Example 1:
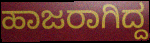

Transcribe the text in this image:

ಹಾಜರಾಗಿದ್ದ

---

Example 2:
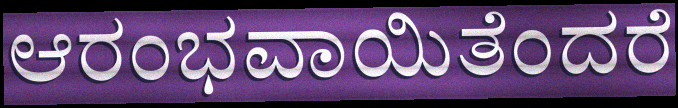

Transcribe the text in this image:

ಆರಂಭವಾಯಿತೆಂದರೆ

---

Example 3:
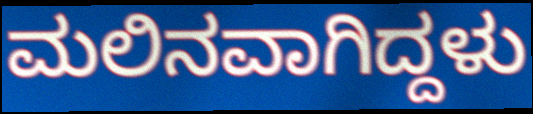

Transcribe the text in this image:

ಮಲಿನವಾಗಿದ್ದಳು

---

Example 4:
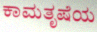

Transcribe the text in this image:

ಕಾಮತೃಷೆಯ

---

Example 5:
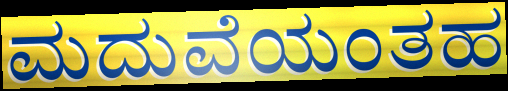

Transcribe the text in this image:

ಮದುವೆಯಂತಹ